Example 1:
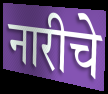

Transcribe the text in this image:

नारीचे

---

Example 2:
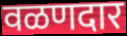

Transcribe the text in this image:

वळणदार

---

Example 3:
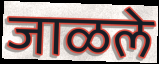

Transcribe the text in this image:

जाळले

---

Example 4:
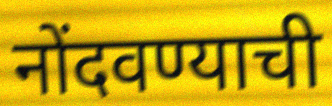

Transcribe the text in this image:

नोंदवण्याची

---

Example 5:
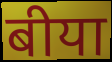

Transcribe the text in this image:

बीया